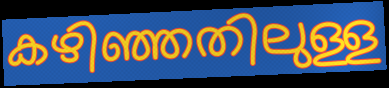
കഴിഞ്ഞതിലുള്ള